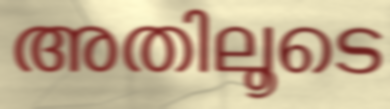
അതിലൂടെ